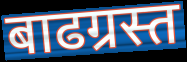
बाढग्रस्त